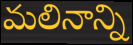
మలినాన్ని